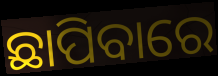
ଛାପିବାରେ